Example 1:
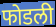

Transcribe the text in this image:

फोडली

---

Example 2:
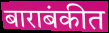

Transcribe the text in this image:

बाराबंकीत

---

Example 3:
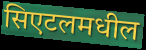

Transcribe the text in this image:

सिएटलमधील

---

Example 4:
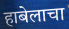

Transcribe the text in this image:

हाबेलाचा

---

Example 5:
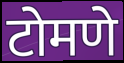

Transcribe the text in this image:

टोमणे